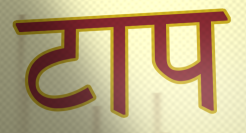
टाप